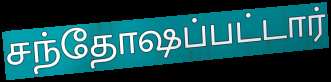
சந்தோஷப்பட்டார்